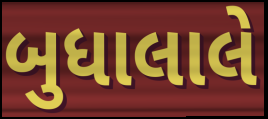
બુધાલાલે